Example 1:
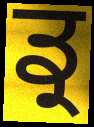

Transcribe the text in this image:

ਡ੍ਰ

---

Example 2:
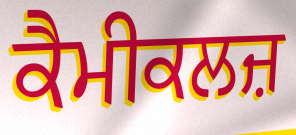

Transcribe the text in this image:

ਕੈਮੀਕਲਜ਼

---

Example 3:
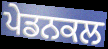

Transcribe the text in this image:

ਪੇਡਨਕਲ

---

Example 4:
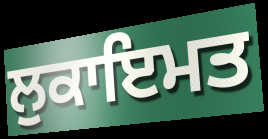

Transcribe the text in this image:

ਲੁਕਾਇਮਤ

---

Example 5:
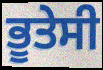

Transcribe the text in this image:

ਭੂਤੇਸੀ